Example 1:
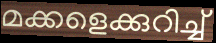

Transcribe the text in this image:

മക്കളെക്കുറിച്ച്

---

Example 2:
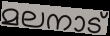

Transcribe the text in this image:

മലനാട്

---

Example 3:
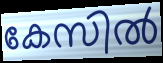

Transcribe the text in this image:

കേസിൽ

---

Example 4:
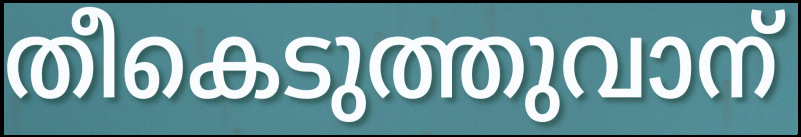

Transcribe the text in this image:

തീകെടുത്തുവാന്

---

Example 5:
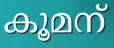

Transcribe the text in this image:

കൂമന്